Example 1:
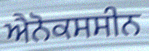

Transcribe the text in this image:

ਐਨੋਕਸਸੀਨ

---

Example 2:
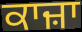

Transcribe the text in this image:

ਕਾਜ਼ਾ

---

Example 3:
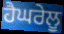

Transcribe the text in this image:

ਹੈਘਰੇਲੂ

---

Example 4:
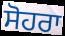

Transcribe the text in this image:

ਸੋਹਰਾ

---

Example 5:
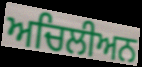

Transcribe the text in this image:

ਅਚਿਲੀਅਨ